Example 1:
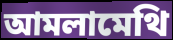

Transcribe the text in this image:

আমলামেথি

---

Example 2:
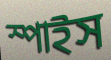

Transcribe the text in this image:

স্পাইস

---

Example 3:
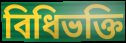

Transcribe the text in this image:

বিধিভক্তি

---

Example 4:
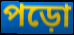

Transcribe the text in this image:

পড়ো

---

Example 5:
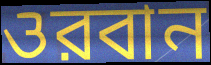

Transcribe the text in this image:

ওরবান